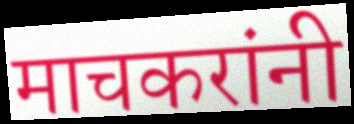
माचकरांनी